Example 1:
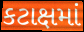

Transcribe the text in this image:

કટાક્ષમાં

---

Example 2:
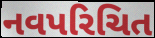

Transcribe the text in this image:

નવપરિચિત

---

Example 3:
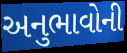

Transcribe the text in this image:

અનુભાવોની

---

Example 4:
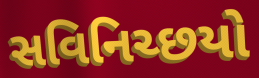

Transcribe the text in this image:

સવિનિચ્છયો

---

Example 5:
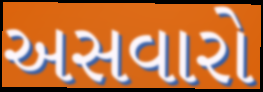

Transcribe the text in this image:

અસવારો